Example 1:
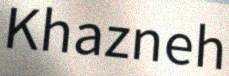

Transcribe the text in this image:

Khazneh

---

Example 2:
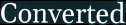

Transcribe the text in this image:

Converted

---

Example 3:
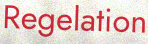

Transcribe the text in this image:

Regelation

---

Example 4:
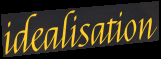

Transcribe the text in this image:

idealisation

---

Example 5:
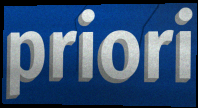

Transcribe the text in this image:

priori